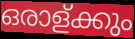
ഒരാള്ക്കും